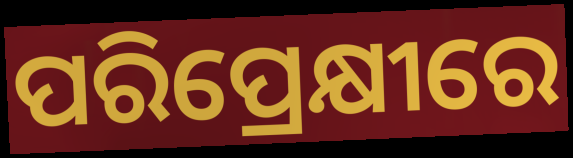
ପରିପ୍ରେକ୍ଷୀରେ